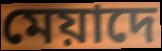
মেয়াদে